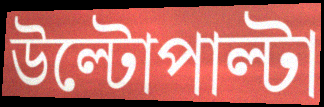
উল্টোপাল্টা